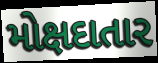
મોક્ષદાતાર